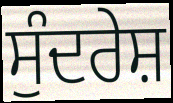
ਸੁੰਦਰੇਸ਼